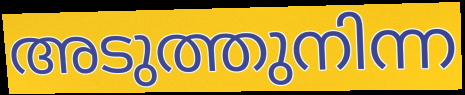
അടുത്തുനിന്ന